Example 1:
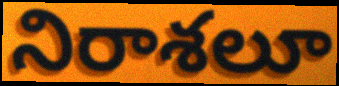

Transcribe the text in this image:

నిరాశలూ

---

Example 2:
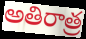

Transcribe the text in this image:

అతిరాత్ర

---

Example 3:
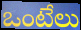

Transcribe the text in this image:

ఒంటేలు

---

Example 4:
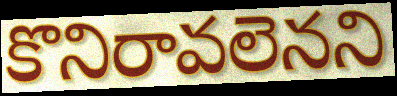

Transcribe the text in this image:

కొనిరావలెనని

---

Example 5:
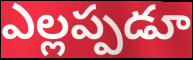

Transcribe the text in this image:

ఎల్లప్పడూ